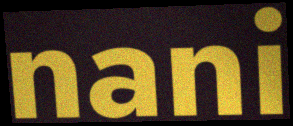
nani